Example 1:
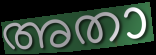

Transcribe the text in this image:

അതാ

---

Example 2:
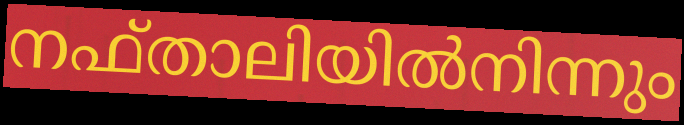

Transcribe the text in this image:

നഫ്താലിയിൽനിന്നും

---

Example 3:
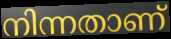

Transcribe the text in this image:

നിന്നതാണ്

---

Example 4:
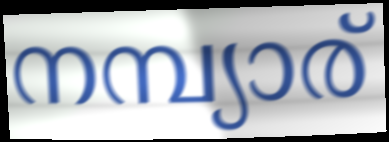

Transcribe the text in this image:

നമ്പ്യാര്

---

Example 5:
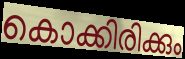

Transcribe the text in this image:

കൊക്കിരിക്കും